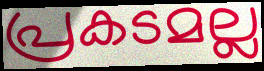
പ്രകടമല്ല